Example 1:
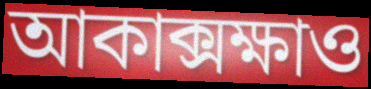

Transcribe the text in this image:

আকাক্সক্ষাও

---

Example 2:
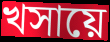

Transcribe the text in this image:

খসায়ে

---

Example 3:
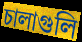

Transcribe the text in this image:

চালাগুলি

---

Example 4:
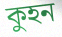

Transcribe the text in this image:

কুহন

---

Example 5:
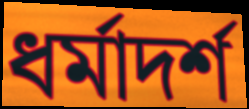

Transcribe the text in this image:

ধর্মাদর্শ